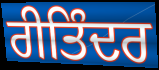
ਰੀਤਿੰਦਰ